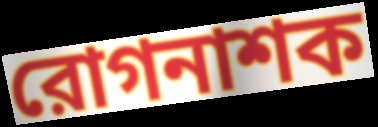
রোগনাশক